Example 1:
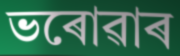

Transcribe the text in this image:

ভৰোৱাৰ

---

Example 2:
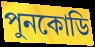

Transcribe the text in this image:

পুনকোডি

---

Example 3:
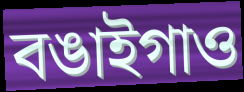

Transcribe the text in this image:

বঙাইগাও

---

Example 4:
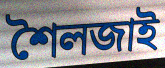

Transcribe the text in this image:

শৈলজাই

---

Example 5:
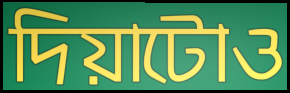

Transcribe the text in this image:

দিয়াটোও